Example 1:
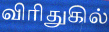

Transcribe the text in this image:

விரிதுகில்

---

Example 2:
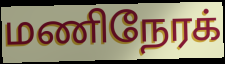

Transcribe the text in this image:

மணிநேரக்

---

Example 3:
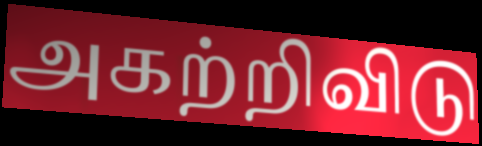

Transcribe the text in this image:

அகற்றிவிடு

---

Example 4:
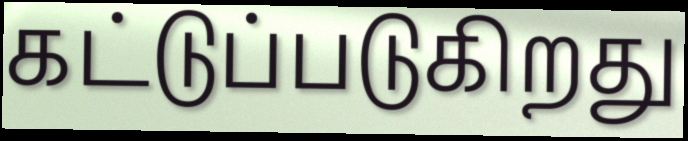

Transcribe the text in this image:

கட்டுப்படுகிறது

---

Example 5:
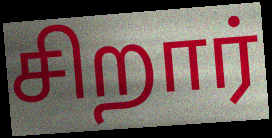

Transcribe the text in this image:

சிறார்